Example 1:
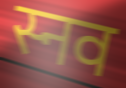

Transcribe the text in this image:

स्नव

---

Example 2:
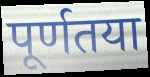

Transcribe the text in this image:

पूर्णतया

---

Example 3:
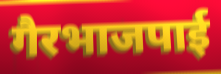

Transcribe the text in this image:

गैरभाजपाई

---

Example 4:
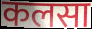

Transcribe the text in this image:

कलसा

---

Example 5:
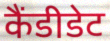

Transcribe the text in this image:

कैंडीडेट